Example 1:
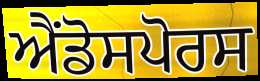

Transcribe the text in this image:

ਐਂਡੋਸਪੋਰਸ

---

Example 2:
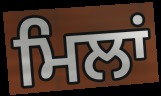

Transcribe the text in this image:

ਮਿਲਾਂ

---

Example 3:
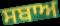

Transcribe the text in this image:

ਸਬਾਅ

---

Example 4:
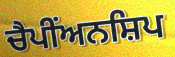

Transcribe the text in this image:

ਚੈਪੀਂਅਨਸ਼ਿਪ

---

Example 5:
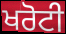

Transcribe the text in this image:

ਖਰੋਟੀ